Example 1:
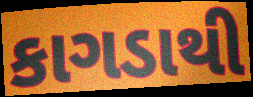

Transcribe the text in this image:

કાગડાથી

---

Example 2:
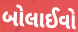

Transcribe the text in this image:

બોલાઈવો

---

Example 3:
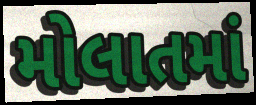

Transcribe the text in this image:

મોલાતમાં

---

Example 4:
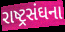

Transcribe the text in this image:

રાષ્ટ્રસંઘના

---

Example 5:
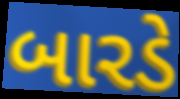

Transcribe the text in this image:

બારડે